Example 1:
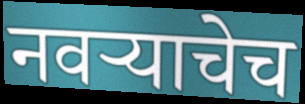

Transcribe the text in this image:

नवऱ्याचेच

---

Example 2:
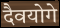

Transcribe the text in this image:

दैवयोगे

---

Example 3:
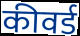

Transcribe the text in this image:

कीवर्ड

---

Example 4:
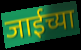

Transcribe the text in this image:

जाईच्या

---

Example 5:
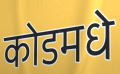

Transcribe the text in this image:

कोडमधे